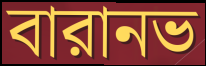
বারানভ